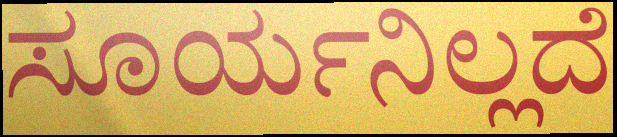
ಸೂರ್ಯನಿಲ್ಲದೆ